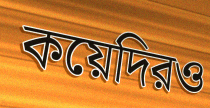
কয়েদিরও